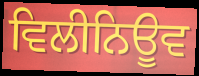
ਵਿਲੀਨਿਊਵ